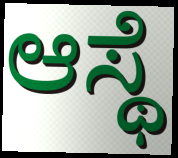
ಆಸ್ಥೆ